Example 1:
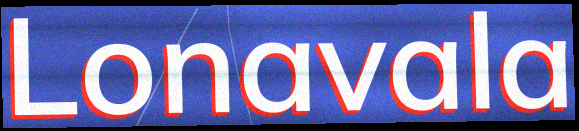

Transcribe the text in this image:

Lonavala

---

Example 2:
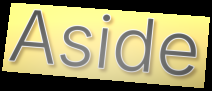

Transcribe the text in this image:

Aside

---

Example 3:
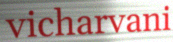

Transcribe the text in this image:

vicharvani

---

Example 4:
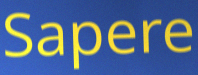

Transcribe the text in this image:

Sapere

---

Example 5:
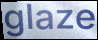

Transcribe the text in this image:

glaze